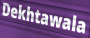
Dekhtawala